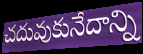
చదువుకునేదాన్ని